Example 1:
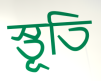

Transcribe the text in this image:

স্তূতি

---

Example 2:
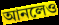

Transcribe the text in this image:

আনলেও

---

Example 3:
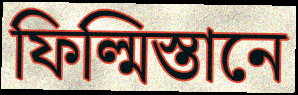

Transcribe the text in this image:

ফিল্মিস্তানে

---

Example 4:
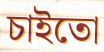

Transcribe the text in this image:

চাইতো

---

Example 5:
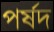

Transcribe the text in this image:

পর্ষদ